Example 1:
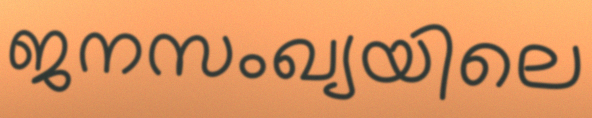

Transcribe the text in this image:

ജനസംഖ്യയിലെ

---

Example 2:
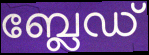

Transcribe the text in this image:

ബ്ലേഡ്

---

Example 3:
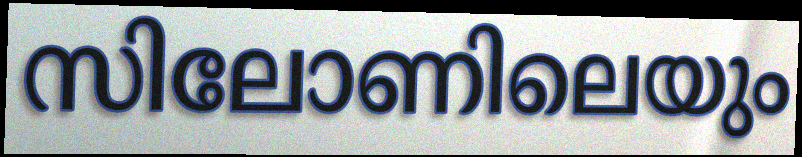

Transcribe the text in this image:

സിലോണിലെയും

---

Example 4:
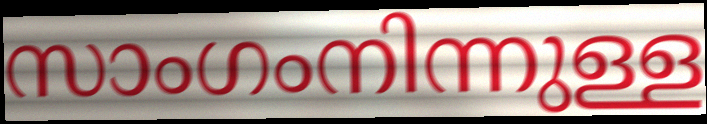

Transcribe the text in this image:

സാംഗംനിന്നുള്ള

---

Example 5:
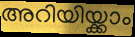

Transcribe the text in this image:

അറിയിയ്ക്കാം